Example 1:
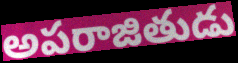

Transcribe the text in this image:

అపరాజితుడు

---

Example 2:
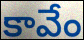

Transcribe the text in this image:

కావేం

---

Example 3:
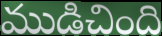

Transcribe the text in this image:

ముడిచింది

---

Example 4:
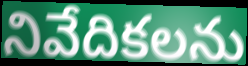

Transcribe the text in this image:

నివేదికలను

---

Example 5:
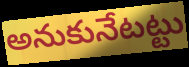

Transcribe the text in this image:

అనుకునేటట్టు